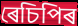
ৰেচিপিৰ